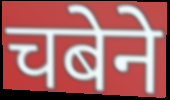
चबेने